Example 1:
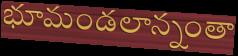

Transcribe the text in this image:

భూమండలాన్నంతా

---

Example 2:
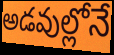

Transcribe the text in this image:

అడవుల్లోనే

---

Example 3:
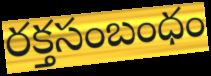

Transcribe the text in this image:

రక్తసంబంధం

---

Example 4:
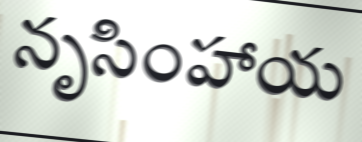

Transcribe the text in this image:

నృసింహాయ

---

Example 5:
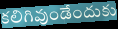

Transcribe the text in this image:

కలిగివుండేందుకు